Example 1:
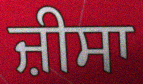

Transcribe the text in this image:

ਜ਼ੀਸਾ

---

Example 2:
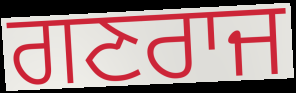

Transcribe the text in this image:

ਗਣਰਾਜ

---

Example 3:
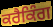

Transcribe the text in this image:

ਕਰੈਕਿੰਗ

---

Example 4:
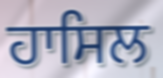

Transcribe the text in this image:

ਹਾਸਿਲ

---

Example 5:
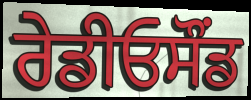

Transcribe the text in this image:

ਰੇਡੀਓਸੌਂਡ